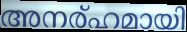
അനര്ഹമായി